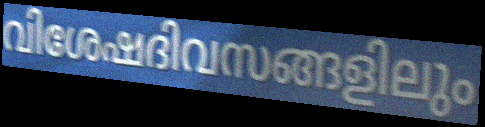
വിശേഷദിവസങ്ങളിലും